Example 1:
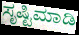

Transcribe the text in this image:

ಸೃಷ್ಟಿಮಾಡಿ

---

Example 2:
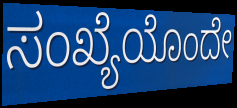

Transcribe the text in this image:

ಸಂಖ್ಯೆಯೊಂದೇ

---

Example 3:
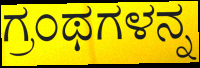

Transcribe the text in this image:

ಗ್ರಂಥಗಳನ್ನ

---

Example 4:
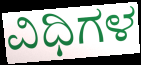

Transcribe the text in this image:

ವಿಧಿಗಳ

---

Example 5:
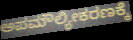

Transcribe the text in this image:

ಅಪಮೌಲ್ಯೀಕರಣಕ್ಕೆ